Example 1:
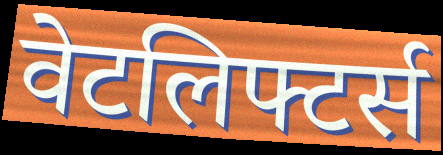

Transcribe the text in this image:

वेटलिफ्टर्स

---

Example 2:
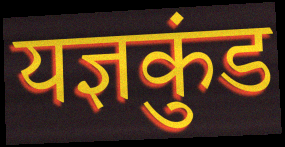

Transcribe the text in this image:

यज्ञकुंड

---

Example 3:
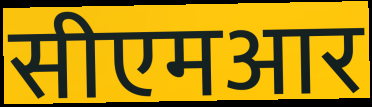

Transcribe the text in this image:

सीएमआर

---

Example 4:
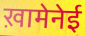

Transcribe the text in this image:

ख़ामेनेई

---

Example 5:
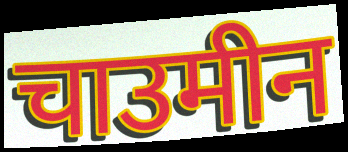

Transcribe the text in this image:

चाउमीन